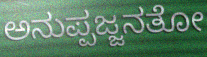
ಅನುಪ್ಪಜ್ಜನತೋ